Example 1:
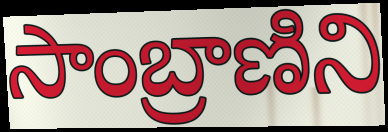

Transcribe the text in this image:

సాంబ్రాణిని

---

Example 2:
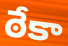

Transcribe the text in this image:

ఠేకా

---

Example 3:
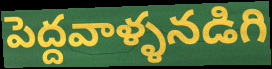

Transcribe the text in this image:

పెద్దవాళ్ళనడిగి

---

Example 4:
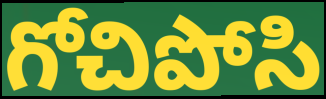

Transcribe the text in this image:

గోచిపోసి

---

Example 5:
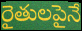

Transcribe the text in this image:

రైతులపైనే